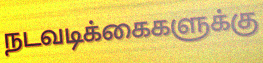
நடவடிக்கைகளுக்கு